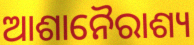
ଆଶାନୈରାଶ୍ୟ